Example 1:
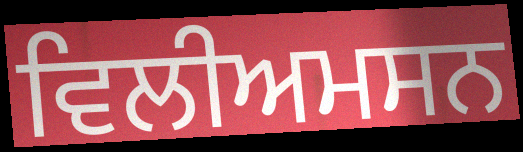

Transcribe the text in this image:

ਵਿਲੀਅਮਸਨ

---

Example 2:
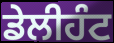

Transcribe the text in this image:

ਡੇਲੀਹੰਟ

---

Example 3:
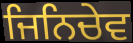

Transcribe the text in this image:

ਜਿਨਿਚੇਵ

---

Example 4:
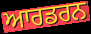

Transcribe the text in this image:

ਆਰਡਰਨ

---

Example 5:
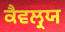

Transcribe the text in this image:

ਕੈਵਲ੍ਰਯ